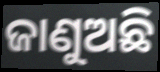
ଜାଣୁଅଛି